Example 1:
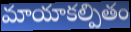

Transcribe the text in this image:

మాయాకల్పితం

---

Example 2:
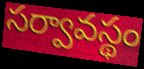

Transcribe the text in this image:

సర్వావస్థం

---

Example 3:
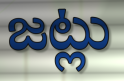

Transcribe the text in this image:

జట్లు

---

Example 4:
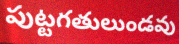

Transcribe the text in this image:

పుట్టగతులుండవు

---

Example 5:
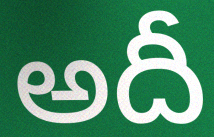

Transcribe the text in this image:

అదీ